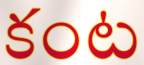
కంట